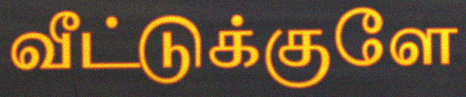
வீட்டுக்குளே